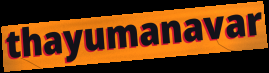
thayumanavar